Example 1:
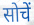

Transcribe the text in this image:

सोचें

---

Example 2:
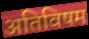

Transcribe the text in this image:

अतिविषम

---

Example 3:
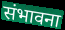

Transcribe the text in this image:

संभावना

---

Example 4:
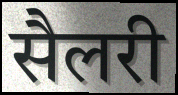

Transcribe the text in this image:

सैलरी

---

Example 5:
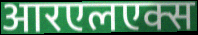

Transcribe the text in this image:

आरएलएक्स